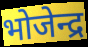
भोजेन्द्र